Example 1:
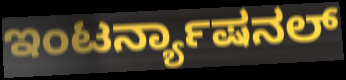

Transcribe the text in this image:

ಇಂಟರ್ನ್ಯಾಷನಲ್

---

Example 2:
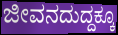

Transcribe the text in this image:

ಜೀವನದುದ್ದಕ್ಕೂ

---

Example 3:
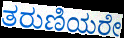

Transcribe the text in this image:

ತರುಣಿಯರೇ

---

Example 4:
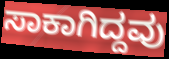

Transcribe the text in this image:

ಸಾಕಾಗಿದ್ದವು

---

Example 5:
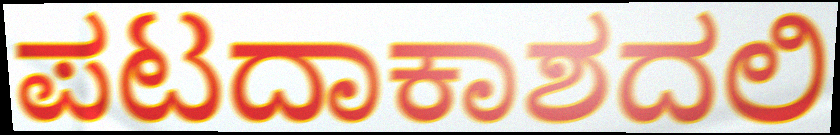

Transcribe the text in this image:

ಪಟದಾಕಾಶದಲಿ